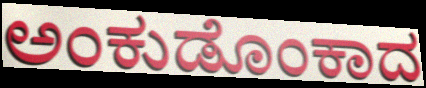
ಅಂಕುಡೊಂಕಾದ